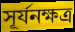
সূর্যনক্ষত্র